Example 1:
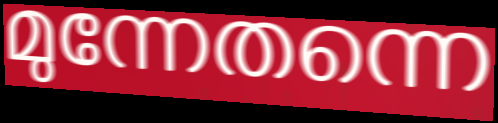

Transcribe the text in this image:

മുന്നേതന്നെ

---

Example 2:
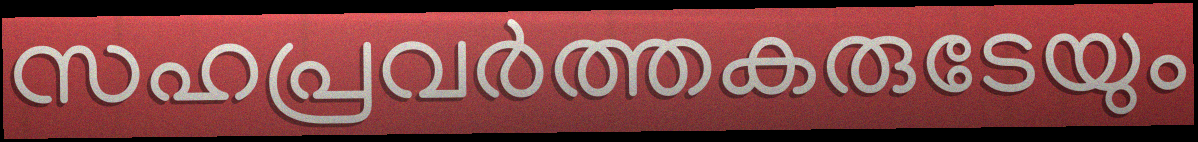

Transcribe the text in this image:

സഹപ്രവർത്തകരുടേയും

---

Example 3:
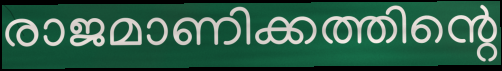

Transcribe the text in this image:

രാജമാണിക്കത്തിന്റെ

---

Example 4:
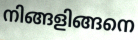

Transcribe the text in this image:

നിങ്ങളിങ്ങനെ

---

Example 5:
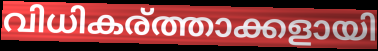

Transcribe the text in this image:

വിധികര്ത്താക്കളായി